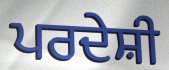
ਪਰਦੇਸ਼ੀ